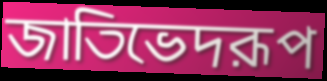
জাতিভেদরূপ